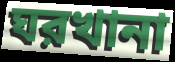
ঘরখানা